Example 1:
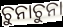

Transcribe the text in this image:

ଚୁନାଚୁନା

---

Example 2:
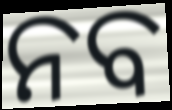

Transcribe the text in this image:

ନବ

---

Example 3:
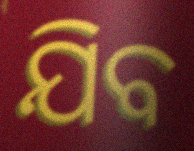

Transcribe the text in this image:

ଯିବ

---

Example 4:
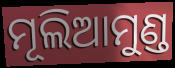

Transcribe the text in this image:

ମୂଲିଆମୁଣ୍ଡ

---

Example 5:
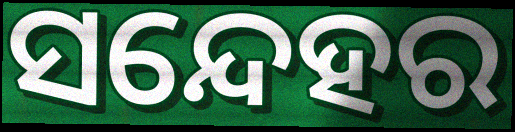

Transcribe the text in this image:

ସନ୍ଦେହର